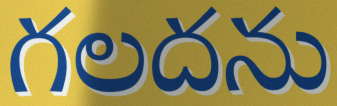
గలదను